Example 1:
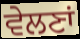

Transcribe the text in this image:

ਵੇਲਣਾਂ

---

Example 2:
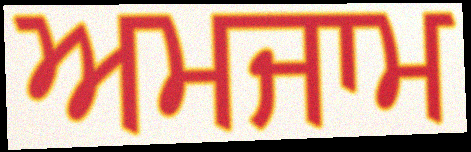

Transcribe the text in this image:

ਅਮਜਾਮ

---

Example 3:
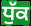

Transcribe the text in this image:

ਧੁੱਕ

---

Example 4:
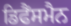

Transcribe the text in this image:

ਡਿਫੈਂਸਮੈਨ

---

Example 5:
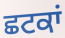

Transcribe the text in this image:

ਛਟਕਾਂ